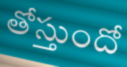
తోస్తుందో